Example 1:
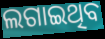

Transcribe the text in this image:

ଲଗାଇଥିବ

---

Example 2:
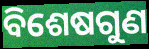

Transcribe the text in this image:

ବିଶେଷଗୁଣ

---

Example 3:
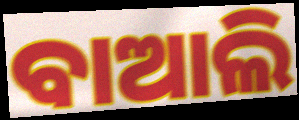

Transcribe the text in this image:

ବାଆଲି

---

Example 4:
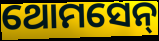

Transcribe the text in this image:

ଥୋମସେନ୍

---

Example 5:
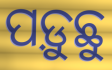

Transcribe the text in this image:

ପଡ଼ୁଛୁ